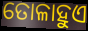
ତୋଳାହୁଏ